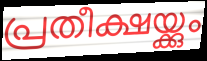
പ്രതീക്ഷയ്ക്കും